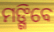
ମଙ୍ଗିବେ